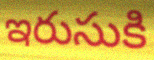
ఇరుసుకి